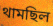
থামছিল